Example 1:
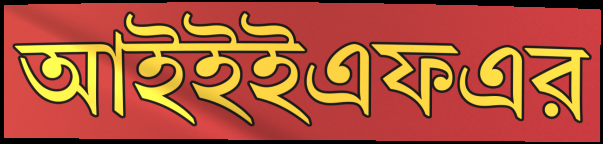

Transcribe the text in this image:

আইইইএফএর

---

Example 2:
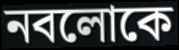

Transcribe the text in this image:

নবলোকে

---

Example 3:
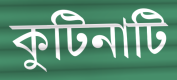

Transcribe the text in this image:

কুটিনাটি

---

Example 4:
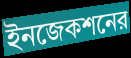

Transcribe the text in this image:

ইনজেকশনের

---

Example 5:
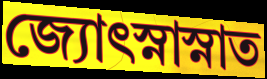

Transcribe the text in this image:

জ্যোৎস্নাস্নাত